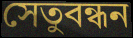
সেতুবন্ধন